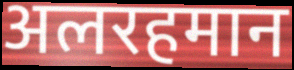
अलरहमान